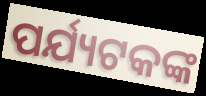
ପର୍ଯ୍ୟଟକଙ୍କ